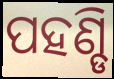
ପହଣ୍ଡି